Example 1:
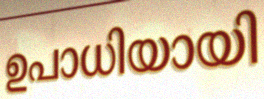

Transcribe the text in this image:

ഉപാധിയായി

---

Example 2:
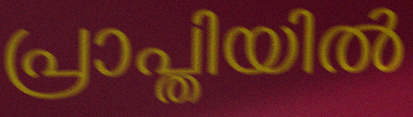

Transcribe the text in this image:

പ്രാപ്തിയിൽ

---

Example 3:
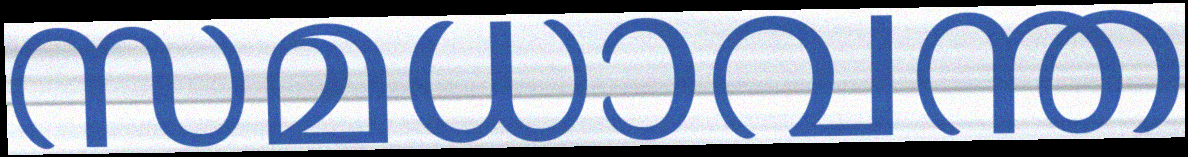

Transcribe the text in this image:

സമധാവന്ത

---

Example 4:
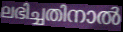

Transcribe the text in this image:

ലഭിച്ചതിനാൽ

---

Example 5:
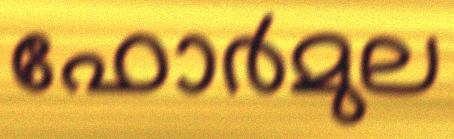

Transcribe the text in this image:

ഫോർമുല